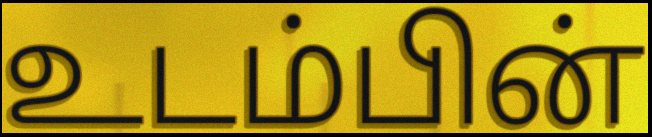
உடம்பின்